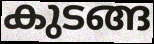
കുടങ്ങ